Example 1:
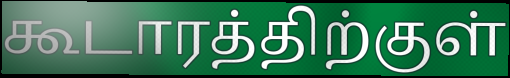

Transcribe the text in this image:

கூடாரத்திற்குள்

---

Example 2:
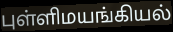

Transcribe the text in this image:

புள்ளிமயங்கியல்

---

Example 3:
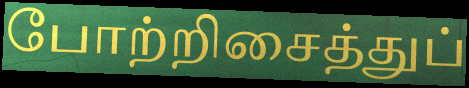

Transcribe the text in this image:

போற்றிசைத்துப்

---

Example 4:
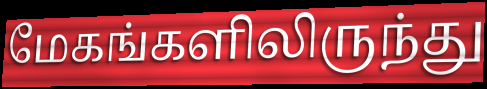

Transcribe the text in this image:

மேகங்களிலிருந்து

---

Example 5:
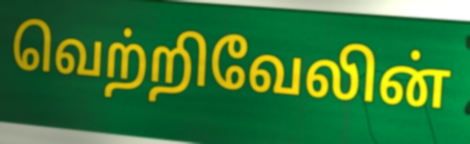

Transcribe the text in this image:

வெற்றிவேலின்